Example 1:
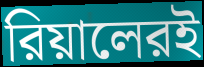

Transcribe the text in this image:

রিয়ালেরই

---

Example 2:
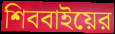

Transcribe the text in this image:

শিববাইয়ের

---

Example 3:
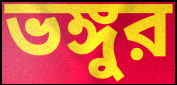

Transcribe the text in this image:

ভঙ্গুর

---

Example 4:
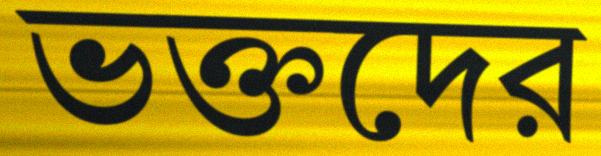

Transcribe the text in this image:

ভক্তদের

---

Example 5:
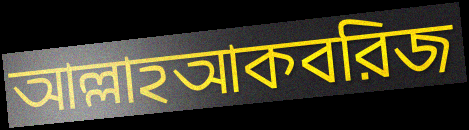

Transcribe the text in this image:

আল্লাহআকবরিজ